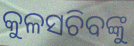
କୁଳସଚିବଙ୍କୁ